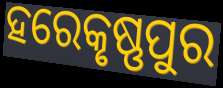
ହରେକୃଷ୍ଣପୁର